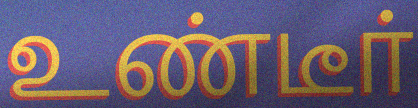
உண்டீர்